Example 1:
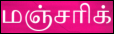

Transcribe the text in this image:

மஞ்சரிக்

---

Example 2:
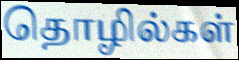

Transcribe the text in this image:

தொழில்கள்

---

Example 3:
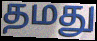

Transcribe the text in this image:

தமது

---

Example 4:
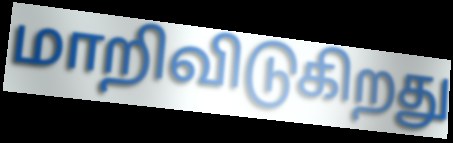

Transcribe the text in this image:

மாறிவிடுகிறது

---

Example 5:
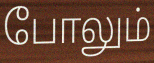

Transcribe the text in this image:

போலும்